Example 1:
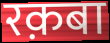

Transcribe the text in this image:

रक़बा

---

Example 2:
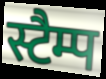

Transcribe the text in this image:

स्टैम्प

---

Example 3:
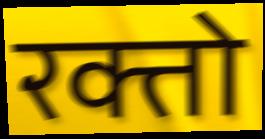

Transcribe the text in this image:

रक्तो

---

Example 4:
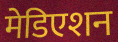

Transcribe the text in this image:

मेडिएशन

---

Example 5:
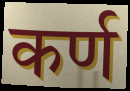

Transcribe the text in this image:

कर्ण